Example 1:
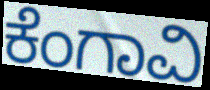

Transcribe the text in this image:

ಕೆಂಗಾವಿ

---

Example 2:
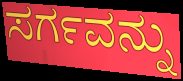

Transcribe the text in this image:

ಸರ್ಗವನ್ನು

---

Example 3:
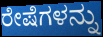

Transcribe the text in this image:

ರೇಷೆಗಳನ್ನು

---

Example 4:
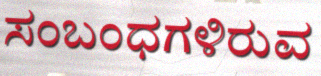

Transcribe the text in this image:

ಸಂಬಂಧಗಳಿರುವ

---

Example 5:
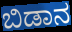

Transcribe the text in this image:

ಬಿಡಾನ